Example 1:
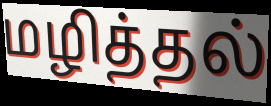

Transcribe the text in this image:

மழித்தல்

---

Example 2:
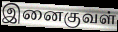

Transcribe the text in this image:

இனைகுவள்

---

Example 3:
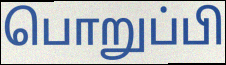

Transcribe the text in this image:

பொறுப்பி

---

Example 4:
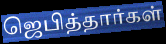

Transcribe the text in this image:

ஜெபித்தார்கள்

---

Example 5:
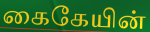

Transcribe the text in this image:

கைகேயின்